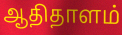
ஆதிதாளம்